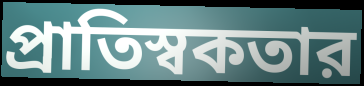
প্রাতিস্বকতার